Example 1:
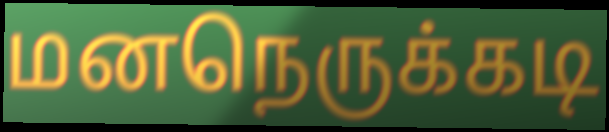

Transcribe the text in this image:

மனநெருக்கடி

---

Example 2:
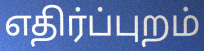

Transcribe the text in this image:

எதிர்ப்புறம்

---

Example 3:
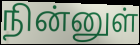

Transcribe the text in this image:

நின்னுள்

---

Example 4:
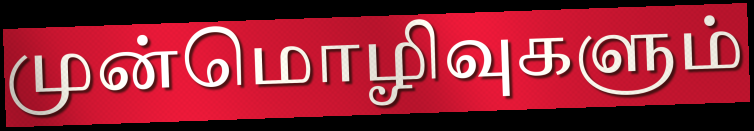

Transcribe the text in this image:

முன்மொழிவுகளும்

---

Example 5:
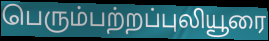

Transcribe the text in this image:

பெரும்பற்றப்புலியூரை